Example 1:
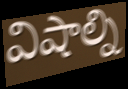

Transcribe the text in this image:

విషాల్ని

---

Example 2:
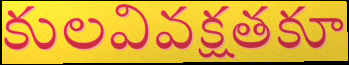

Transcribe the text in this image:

కులవివక్షతకూ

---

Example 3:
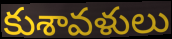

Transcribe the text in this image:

కుశావళులు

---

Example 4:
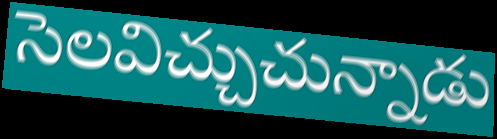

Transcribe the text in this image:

సెలవిచ్చుచున్నాడు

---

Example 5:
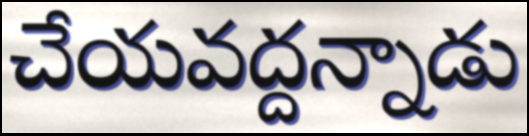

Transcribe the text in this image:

చేయవద్దన్నాడు